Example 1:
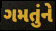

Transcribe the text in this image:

ગમતુંને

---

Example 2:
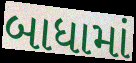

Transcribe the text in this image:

બાધામાં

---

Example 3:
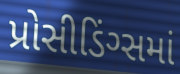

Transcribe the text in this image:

પ્રોસીડિંગ્સમાં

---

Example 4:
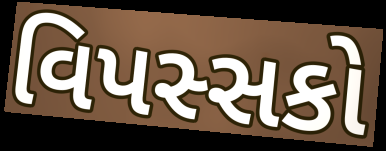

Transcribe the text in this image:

વિપસ્સકો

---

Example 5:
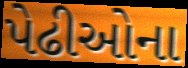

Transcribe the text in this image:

પેઢીઓના